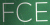
FCE